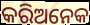
କରିଅନେକ